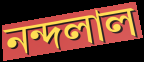
নন্দলাল